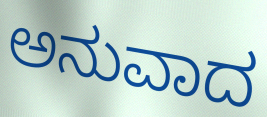
ಅನುವಾದ